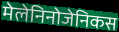
मेलेनिनोजेनिकस